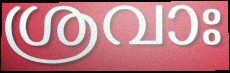
ശ്രവാഃ